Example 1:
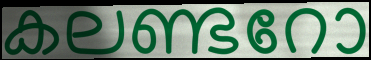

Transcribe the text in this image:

കലണ്ടറോ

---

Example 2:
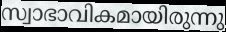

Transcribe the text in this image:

സ്വാഭാവികമായിരുന്നു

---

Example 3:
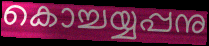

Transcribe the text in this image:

കൊച്ചയ്യപ്പനു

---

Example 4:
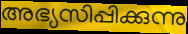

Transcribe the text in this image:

അഭ്യസിപ്പിക്കുന്നു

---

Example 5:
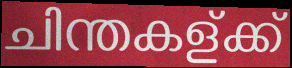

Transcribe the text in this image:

ചിന്തകള്ക്ക്